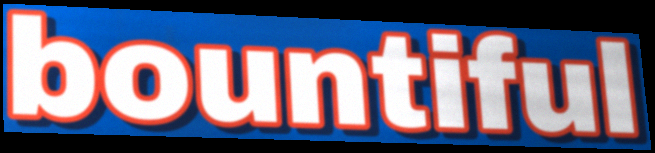
bountiful